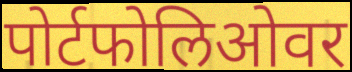
पोर्टफोलिओवर